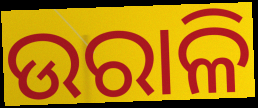
ଉରାଳି